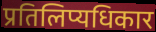
प्रतिलिप्यधिकार